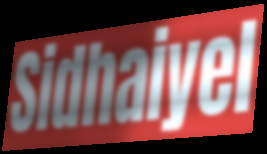
Sidhaiyel